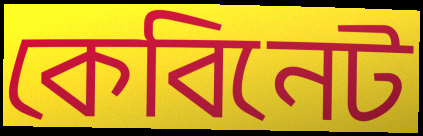
কেবিনেট